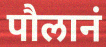
पौलानं